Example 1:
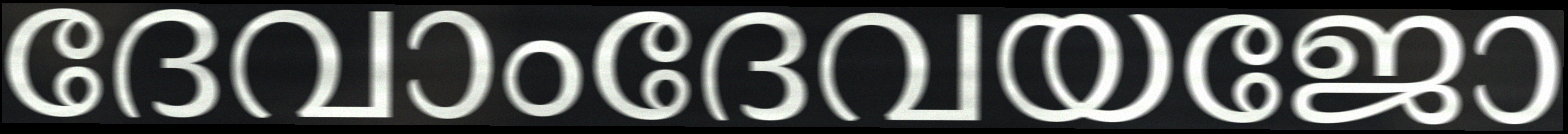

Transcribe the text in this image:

ദേവാംദേവയജോ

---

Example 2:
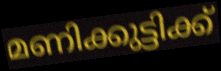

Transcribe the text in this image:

മണിക്കുട്ടിക്ക്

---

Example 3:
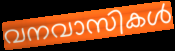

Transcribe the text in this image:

വനവാസികൾ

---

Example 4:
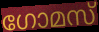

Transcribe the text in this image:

ഗോമസ്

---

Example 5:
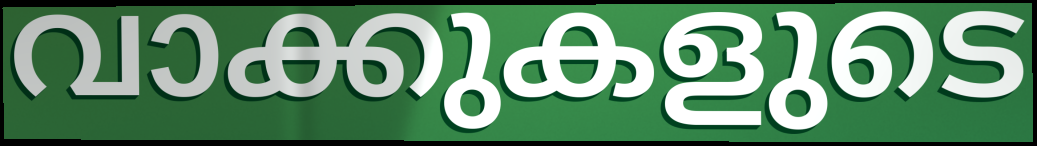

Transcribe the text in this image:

വാക്കുകളുടെ